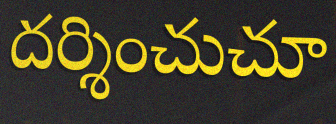
దర్శించుచూ